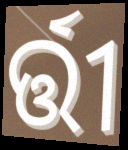
ର୍ତ୍ତୀ